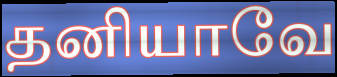
தனியாவே